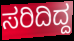
ಸರಿದಿದ್ದ